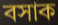
বসাক